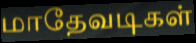
மாதேவடிகள்